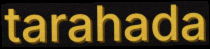
tarahada